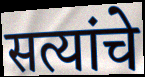
सत्यांचे